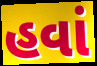
હવાં